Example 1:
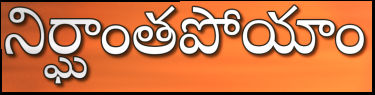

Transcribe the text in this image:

నిర్ఘాంతపోయాం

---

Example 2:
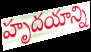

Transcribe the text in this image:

హృదయాన్ని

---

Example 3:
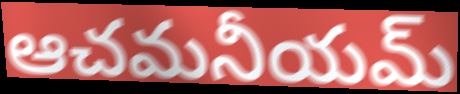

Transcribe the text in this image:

ఆచమనీయమ్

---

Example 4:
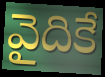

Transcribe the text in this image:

వైదికే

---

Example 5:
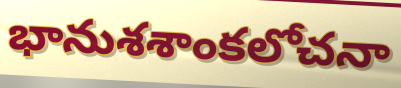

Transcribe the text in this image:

భానుశశాంకలోచనా